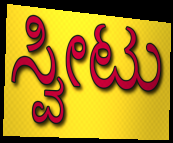
ಸ್ವೀಟು